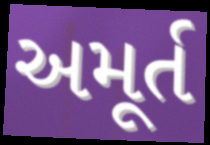
અમૂર્ત